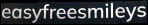
easyfreesmileys